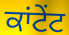
ਕਾਂਟੇਂਟ